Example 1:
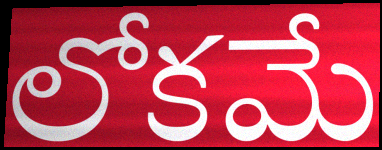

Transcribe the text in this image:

లోకమే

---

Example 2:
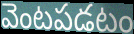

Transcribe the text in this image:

వెంటపడటం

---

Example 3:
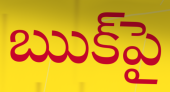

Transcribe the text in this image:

ఋక్‌పై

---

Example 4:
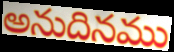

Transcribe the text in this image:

అనుదినము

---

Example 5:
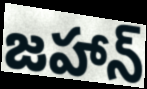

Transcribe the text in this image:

జహాన్